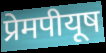
प्रेमपीयूष